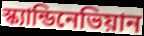
স্ক্যান্ডিনেভিয়ান